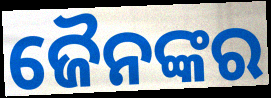
ଜୈନଙ୍କର